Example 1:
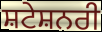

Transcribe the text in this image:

ਸ਼ਟੇਸ਼ਨਰੀ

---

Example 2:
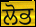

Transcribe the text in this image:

ਲੋਭ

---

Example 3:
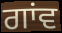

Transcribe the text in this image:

ਗਾਂਵ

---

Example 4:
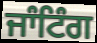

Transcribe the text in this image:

ਜਾੰਟਿੰਗ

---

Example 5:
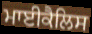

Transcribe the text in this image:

ਮਾਈਕੈਲਿਸ